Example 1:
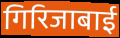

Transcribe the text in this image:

गिरिजाबाई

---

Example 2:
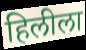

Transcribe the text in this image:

हिलीला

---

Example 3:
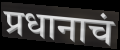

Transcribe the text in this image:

प्रधानाचं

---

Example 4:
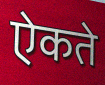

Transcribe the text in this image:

ऐकते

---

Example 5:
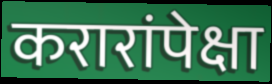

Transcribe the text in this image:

करारांपेक्षा